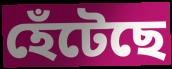
হেঁটেছে